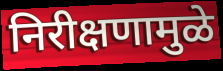
निरीक्षणामुळे